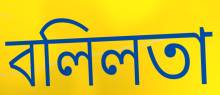
বলিলতা